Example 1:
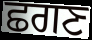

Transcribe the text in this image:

ਛਗਣ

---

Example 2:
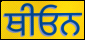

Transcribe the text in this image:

ਥੀਓਨ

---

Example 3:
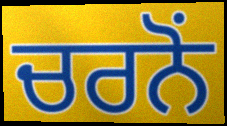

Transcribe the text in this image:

ਚਰਨੋਂ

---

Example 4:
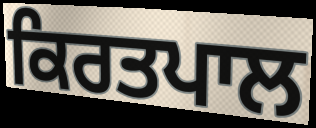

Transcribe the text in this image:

ਕਿਰਤਪਾਲ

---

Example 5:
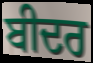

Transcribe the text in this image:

ਬੀਦਰ